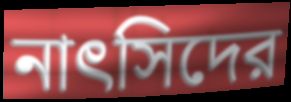
নাৎসিদের